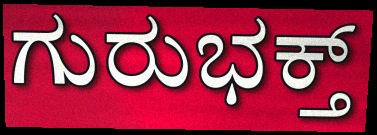
ಗುರುಭಕ್ತ್